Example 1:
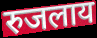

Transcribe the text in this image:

रुजलाय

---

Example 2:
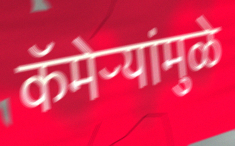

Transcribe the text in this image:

कॅमेऱ्यांमुळे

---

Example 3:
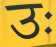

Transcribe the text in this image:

उः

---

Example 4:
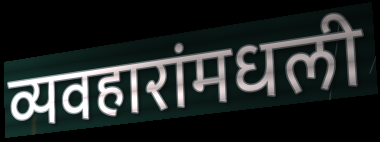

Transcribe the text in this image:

व्यवहारांमधली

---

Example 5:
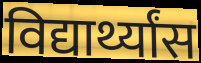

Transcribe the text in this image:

विद्यार्थ्यांस